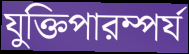
যুক্তিপারম্পর্য